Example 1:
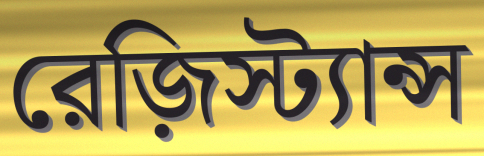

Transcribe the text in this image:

রেজ়িস্ট্যান্স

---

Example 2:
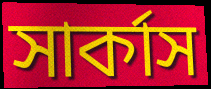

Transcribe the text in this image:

সার্কাস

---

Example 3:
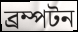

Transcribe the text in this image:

ব্রম্পটন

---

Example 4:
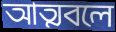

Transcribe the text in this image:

আত্মবলে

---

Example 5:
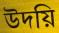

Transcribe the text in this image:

উদয়ি